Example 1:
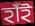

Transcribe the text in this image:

হাঁই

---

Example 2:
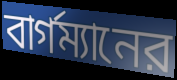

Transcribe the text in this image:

বার্গম্যানের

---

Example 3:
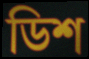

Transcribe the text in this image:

ডিশ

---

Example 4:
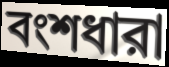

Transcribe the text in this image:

বংশধারা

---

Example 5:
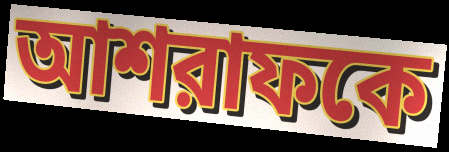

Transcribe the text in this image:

আশরাফকে